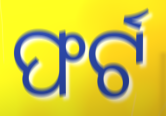
ଫର୍ଟ